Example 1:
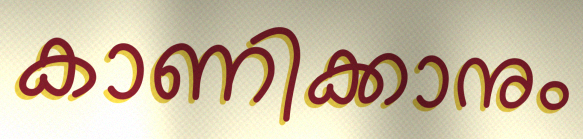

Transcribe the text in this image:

കാണിക്കാനും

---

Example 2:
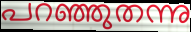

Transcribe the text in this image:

പറഞ്ഞുതന്നു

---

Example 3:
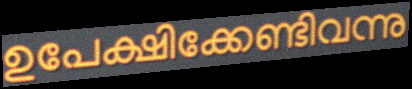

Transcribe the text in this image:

ഉപേക്ഷിക്കേണ്ടിവന്നു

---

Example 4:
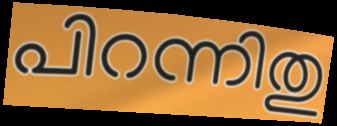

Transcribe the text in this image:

പിറന്നിതു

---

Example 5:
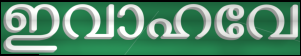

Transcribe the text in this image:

ഇവാഹവേ